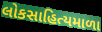
લોકસાહિત્યમાળા